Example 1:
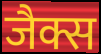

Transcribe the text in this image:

जैक्स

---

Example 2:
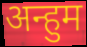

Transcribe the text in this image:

अन्हुम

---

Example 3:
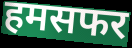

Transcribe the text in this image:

हमसफर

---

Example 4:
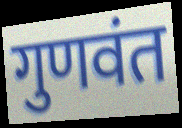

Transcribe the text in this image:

गुणवंत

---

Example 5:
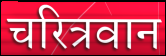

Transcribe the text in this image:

चरित्रवान